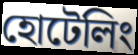
হোটেলিং